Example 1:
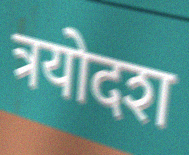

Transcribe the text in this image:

त्रयोदश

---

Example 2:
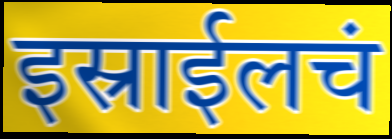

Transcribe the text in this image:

इस्राईलचं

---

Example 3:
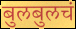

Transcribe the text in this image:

बुलबुलचं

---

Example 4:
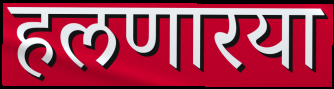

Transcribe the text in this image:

हलणारया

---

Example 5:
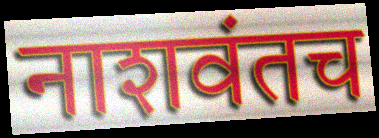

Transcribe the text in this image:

नाशवंतच